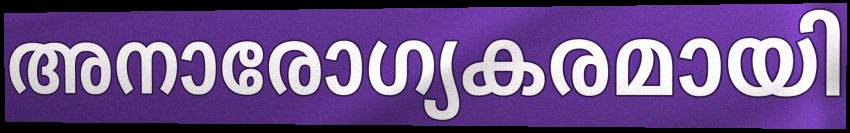
അനാരോഗ്യകരമായി